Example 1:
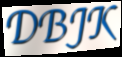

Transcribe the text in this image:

DBJK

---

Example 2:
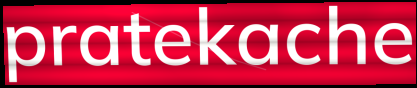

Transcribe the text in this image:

pratekache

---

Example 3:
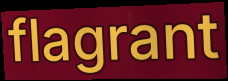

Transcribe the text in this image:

flagrant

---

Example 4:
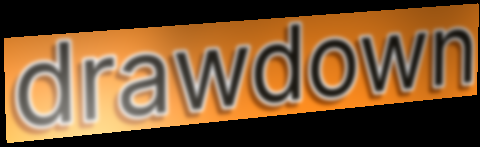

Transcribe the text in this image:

drawdown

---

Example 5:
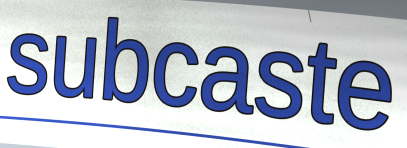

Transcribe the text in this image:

subcaste